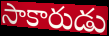
సాకారుడు